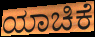
ಯಾಚಿಕೆ